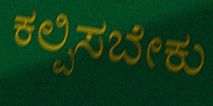
ಕಲ್ಪಿಸಬೇಕು